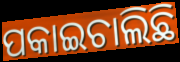
ପକାଇଚାଲିଛି